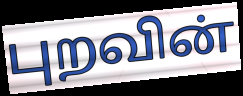
புறவின்